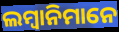
ଲମ୍ବାନିମାନେ